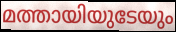
മത്തായിയുടേയും